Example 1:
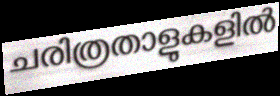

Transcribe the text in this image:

ചരിത്രതാളുകളിൽ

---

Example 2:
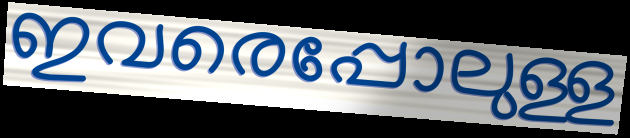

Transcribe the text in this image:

ഇവരെപ്പോലുള്ള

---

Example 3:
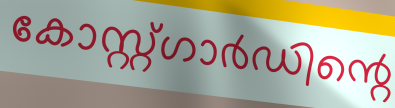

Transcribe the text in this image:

കോസ്റ്റ്ഗാർഡിന്റെ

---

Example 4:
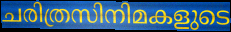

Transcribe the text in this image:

ചരിത്രസിനിമകളുടെ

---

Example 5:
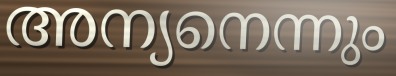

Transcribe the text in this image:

അന്യനെന്നും